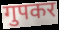
गुपकर